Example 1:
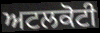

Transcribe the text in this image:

ਅਟਲਕੋਟੀ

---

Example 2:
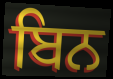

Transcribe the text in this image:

ਬਿਨ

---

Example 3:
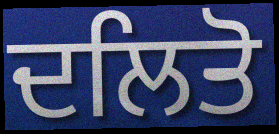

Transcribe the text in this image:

ਦਲਿਤੋ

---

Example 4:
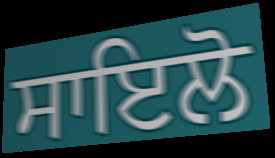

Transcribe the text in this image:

ਸਾਇਲੋ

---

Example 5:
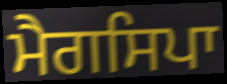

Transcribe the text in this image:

ਮੈਗਸਿਪਾ